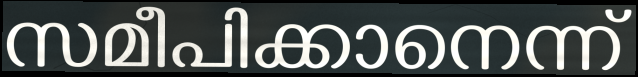
സമീപിക്കാനെന്ന്